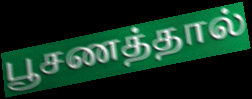
பூசணத்தால்